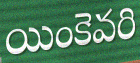
యింకెవరి